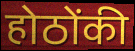
होठोंकी